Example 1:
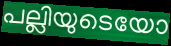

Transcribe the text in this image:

പല്ലിയുടെയോ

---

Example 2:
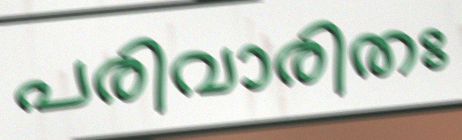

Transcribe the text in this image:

പരിവാരിതഃ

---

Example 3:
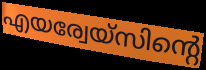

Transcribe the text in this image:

എയര്വേയ്സിന്റെ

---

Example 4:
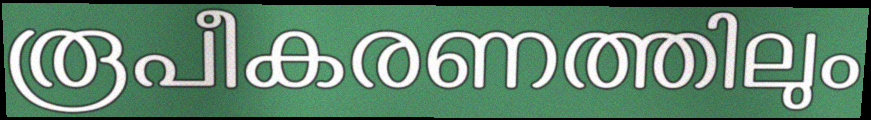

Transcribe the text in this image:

രൂപീകരണത്തിലും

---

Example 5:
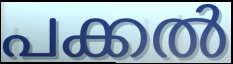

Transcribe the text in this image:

പക്കൽ